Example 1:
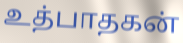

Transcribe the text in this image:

உத்பாதகன்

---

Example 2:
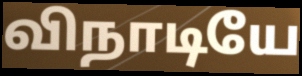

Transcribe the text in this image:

விநாடியே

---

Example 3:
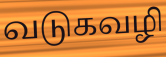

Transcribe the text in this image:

வடுகவழி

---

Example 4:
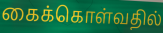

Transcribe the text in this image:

கைக்கொள்வதில்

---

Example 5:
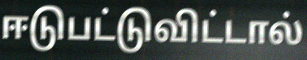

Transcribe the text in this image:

ஈடுபட்டுவிட்டால்